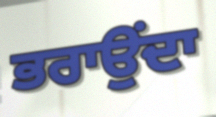
ਭਰਾਉਂਦਾ